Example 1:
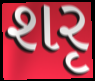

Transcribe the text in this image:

શરૃ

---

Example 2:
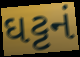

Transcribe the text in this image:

ઘટ્ટનં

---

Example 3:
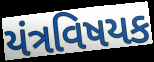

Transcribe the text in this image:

યંત્રવિષયક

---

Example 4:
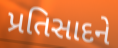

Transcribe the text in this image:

પ્રતિસાદને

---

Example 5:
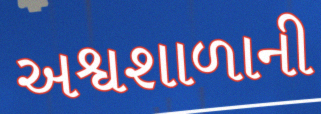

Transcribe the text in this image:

અશ્વશાળાની